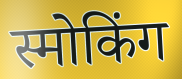
स्‍मोकिंग